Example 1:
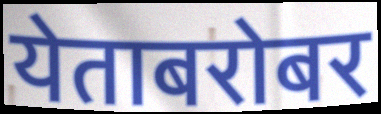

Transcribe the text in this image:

येताबरोबर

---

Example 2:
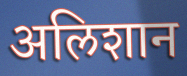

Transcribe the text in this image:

अलिशान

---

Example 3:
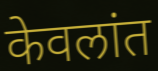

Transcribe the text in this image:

केवलांत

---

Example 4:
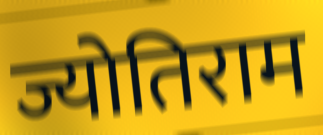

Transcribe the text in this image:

ज्योतिराम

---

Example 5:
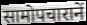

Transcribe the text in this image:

सामोपचारानें